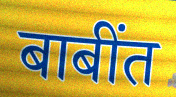
बाबींत